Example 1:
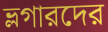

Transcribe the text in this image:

ভ্লগারদের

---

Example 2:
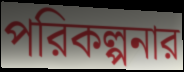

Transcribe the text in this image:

পরিকল্পনার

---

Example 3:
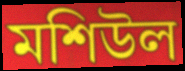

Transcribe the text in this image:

মশিউল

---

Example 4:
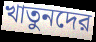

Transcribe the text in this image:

খাতুনদের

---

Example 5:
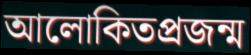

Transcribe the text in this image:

আলোকিতপ্রজন্ম